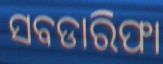
ସବଡାରିଫା